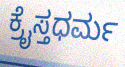
ಕ್ರೈಸ್ತಧರ್ಮ